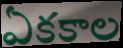
ఏకకాల